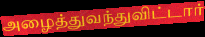
அழைத்துவந்துவிட்டார்